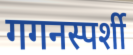
गगनस्पर्शी